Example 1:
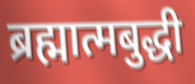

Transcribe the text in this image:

ब्रह्मात्मबुद्धी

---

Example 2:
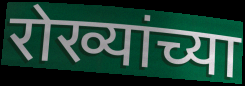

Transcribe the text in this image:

रोख्यांच्या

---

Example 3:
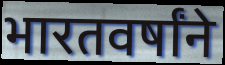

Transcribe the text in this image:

भारतवर्षांने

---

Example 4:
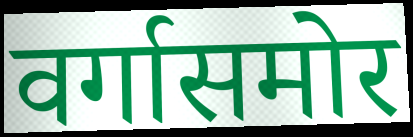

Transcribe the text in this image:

वर्गासमोर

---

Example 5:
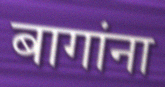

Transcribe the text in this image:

बागांना